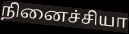
நினைச்சியா